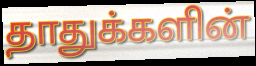
தாதுக்களின்